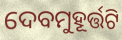
ଦେବମୁହୂର୍ତ୍ତଟି